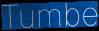
Tumbe